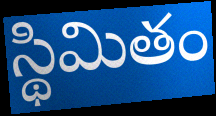
స్థిమితం